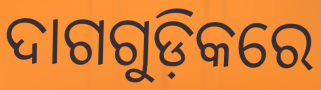
ଦାଗଗୁଡ଼ିକରେ